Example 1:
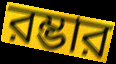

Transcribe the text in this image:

রম্ভার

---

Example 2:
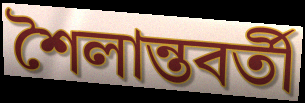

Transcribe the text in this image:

শৈলান্তবর্তী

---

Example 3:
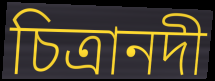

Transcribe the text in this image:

চিত্রানদী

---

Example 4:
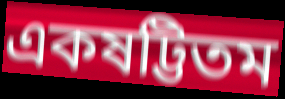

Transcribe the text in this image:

একষট্টিতম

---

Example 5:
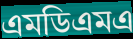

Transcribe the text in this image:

এমডিএমএ